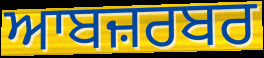
ਆਬਜ਼ਰਬਰ